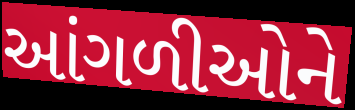
આંગળીઓને